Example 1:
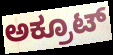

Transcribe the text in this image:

ಅಕ್ರೂಟ್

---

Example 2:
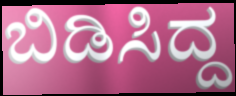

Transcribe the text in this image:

ಬಿಡಿಸಿದ್ದ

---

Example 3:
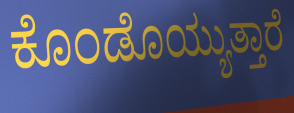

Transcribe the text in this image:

ಕೊಂಡೊಯ್ಯುತ್ತಾರೆ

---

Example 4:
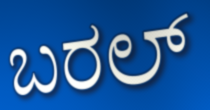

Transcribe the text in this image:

ಬರಲ್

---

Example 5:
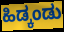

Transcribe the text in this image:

ಹಿಡ್ಕಂಡು